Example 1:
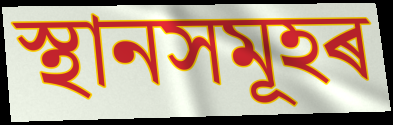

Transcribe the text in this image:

স্থানসমূহৰ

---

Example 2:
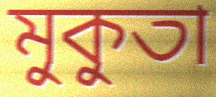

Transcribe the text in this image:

মুকুতা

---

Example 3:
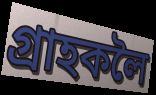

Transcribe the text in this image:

গ্ৰাহকলৈ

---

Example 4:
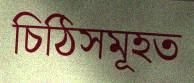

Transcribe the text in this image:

চিঠিসমূহত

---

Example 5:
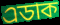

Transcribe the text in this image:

এডাক